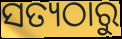
ସତ୍ୟଠାରୁ